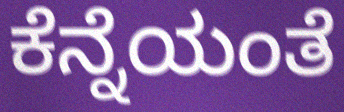
ಕೆನ್ನೆಯಂತೆ